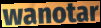
wanotar